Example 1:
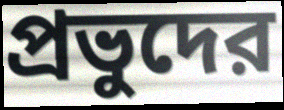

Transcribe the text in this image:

প্রভুদের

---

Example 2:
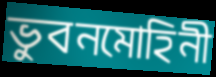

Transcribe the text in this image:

ভুবনমোহিনী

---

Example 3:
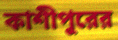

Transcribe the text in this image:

কাশীপুরের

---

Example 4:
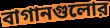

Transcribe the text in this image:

বাগানগুলোর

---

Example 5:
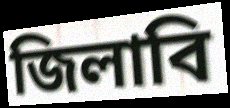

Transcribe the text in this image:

জিলাবি